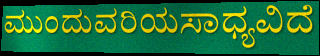
ಮುಂದುವರಿಯಸಾಧ್ಯವಿದೆ